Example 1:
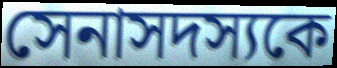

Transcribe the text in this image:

সেনাসদস্যকে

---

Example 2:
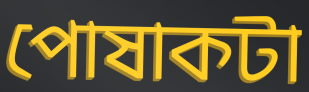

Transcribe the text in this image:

পোষাকটা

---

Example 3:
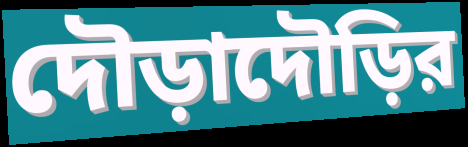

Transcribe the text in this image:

দৌড়াদৌড়ির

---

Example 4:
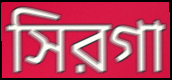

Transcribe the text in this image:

সিরগা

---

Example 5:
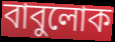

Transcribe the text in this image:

বাবুলোক